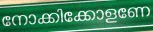
നോക്കിക്കോളണേ